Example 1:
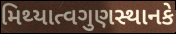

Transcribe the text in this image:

મિથ્યાત્વગુણસ્થાનકે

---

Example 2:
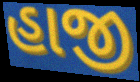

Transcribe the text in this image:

હાજી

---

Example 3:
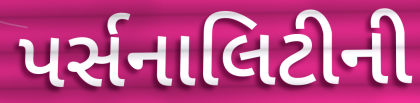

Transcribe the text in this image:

પર્સનાલિટીની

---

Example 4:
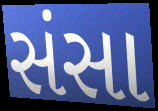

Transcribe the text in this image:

સંસા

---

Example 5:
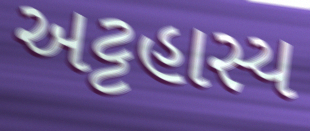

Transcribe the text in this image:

અટ્ટહાસ્ય